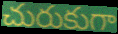
చురుకుగా